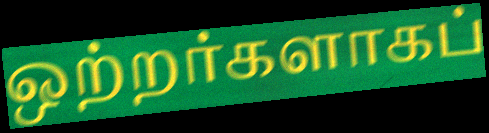
ஒற்றர்களாகப்